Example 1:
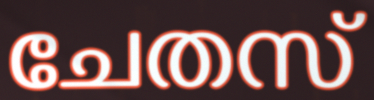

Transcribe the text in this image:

ചേതസ്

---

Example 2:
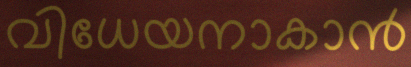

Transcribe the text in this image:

വിധേയനാകാൻ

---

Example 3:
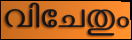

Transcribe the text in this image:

വിചേതും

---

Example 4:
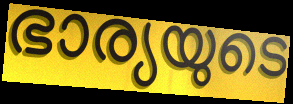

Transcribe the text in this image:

ഭാര്യയുടെ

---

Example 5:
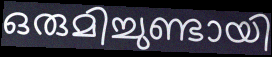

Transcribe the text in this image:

ഒരുമിച്ചുണ്ടായി